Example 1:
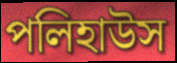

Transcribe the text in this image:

পলিহাউস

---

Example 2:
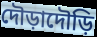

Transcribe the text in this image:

দৌড়াদৌড়ি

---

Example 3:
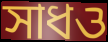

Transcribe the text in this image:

সাধও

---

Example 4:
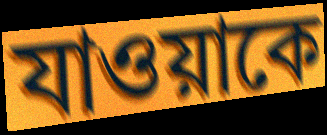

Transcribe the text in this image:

যাওয়াকে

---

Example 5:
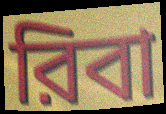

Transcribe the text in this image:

রিবা